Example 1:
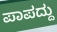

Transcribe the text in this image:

ಪಾಪದ್ದು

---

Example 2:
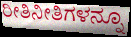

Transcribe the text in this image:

ರೀತಿನೀತಿಗಳನ್ನೂ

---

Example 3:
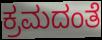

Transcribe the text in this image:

ಕ್ರಮದಂತೆ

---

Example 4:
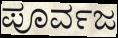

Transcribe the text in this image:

ಪೂರ್ವಜ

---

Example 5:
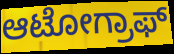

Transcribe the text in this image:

ಆಟೋಗ್ರಾಫ್